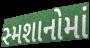
સ્મશાનોમાં